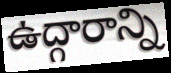
ఉద్గారాన్ని